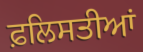
ਫ਼ਲਿਸਤੀਆਂ